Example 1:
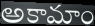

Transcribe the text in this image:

అకామాం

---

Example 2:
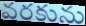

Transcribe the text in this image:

వరకును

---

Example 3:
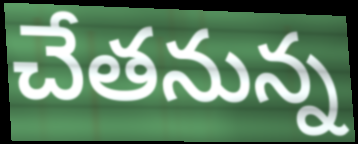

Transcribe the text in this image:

చేతనున్న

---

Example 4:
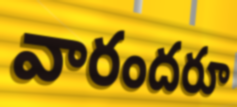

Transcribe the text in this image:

వారందరూ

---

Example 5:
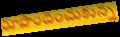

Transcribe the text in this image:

రూపొందించుకున్న